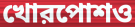
খোরপোশও